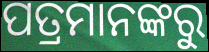
ପତ୍ରମାନଙ୍କରୁ